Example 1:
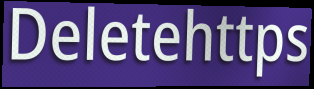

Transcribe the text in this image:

Deletehttps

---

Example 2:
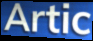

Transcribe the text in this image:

Artic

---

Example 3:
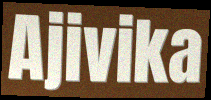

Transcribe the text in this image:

Ajivika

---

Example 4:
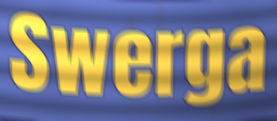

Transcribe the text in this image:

Swerga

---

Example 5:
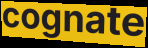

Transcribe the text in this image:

cognate